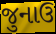
જુનાઉ